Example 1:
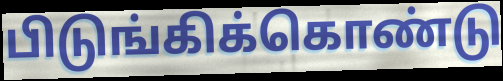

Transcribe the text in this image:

பிடுங்கிக்கொண்டு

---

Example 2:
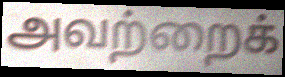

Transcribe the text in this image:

அவற்றைக்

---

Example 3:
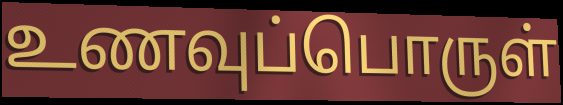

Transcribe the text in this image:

உணவுப்பொருள்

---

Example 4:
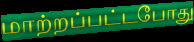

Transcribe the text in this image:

மாற்றப்பட்டபோது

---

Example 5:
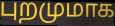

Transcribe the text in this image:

புறமுமாக